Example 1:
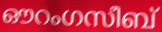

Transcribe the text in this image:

ഔറംഗസീബ്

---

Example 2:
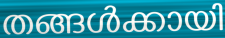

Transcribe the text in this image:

തങ്ങൾക്കായി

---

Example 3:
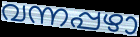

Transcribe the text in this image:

വന്നപ്പഴാ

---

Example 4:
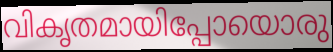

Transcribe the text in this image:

വികൃതമായിപ്പോയൊരു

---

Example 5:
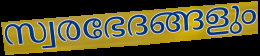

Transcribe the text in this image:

സ്വരഭേദങ്ങളും